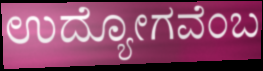
ಉದ್ಯೋಗವೆಂಬ